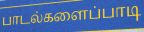
பாடல்களைப்பாடி